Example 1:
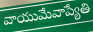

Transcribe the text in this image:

వాయుమేవాప్యేతి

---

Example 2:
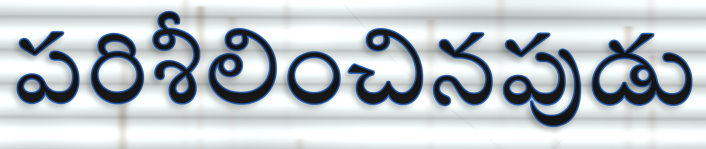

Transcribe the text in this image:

పరిశీలించినపుడు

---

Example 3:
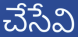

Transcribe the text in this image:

చేసేవి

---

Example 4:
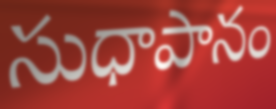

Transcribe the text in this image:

సుధాపానం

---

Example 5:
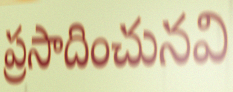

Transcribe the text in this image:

ప్రసాదించునవి